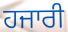
ਹਜਾਰੀ